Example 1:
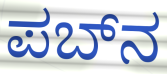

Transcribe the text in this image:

ಪಬ್‌ನ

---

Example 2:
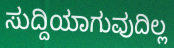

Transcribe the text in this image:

ಸುದ್ದಿಯಾಗುವುದಿಲ್ಲ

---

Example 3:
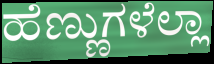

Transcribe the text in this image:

ಹೆಣ್ಣುಗಳೆಲ್ಲಾ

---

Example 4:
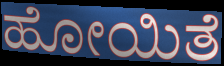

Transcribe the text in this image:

ಹೋಯಿತೆ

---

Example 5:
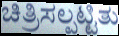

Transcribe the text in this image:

ಚಿತ್ರಿಸಲ್ಪಟ್ಟಿತು